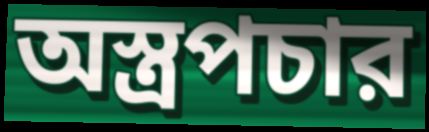
অস্ত্রপচার